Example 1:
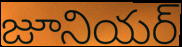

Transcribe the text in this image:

జూనియర్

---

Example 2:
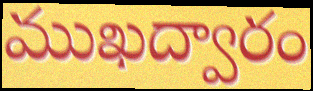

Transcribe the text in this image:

ముఖద్వారం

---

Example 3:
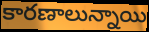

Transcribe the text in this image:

కారణాలున్నాయి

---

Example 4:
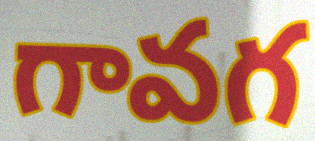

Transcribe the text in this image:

గావగ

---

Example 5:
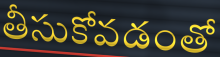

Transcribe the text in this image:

తీసుకోవడంతో